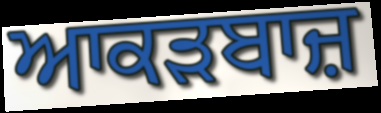
ਆਕੜਬਾਜ਼